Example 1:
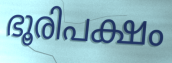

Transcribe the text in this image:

ഭൂരിപക്ഷം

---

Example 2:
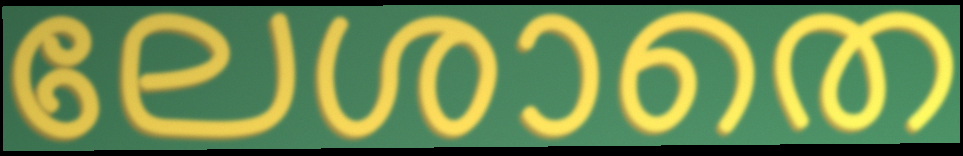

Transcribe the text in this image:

ലേശാതെ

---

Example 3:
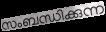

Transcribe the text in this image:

സംബന്ധിക്കുന്ന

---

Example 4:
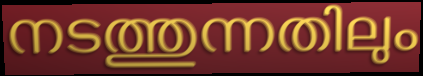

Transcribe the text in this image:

നടത്തുന്നതിലും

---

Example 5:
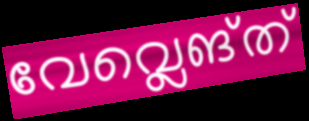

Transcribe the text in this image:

വേവ്ലെങ്ത്